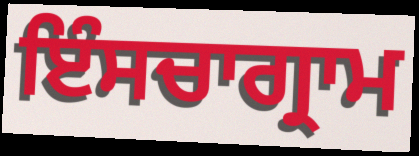
ਇੰਸਚਾਗ੍ਰਾਮ